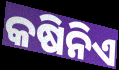
କଷିନିଏ